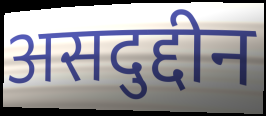
असदुद्दीन